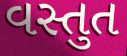
વસ્તુત